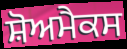
ਸ਼ੋਅਮੈਕਸ